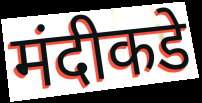
मंदीकडे